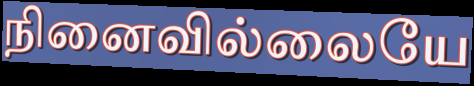
நினைவில்லையே